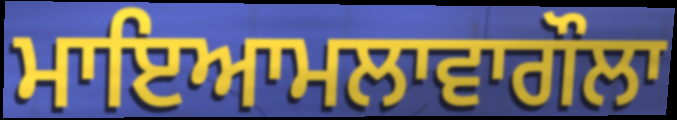
ਮਾਇਆਮਲਾਵਾਗੌਲਾ